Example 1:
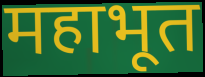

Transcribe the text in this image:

महाभूत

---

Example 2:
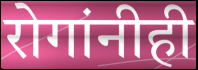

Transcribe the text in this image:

रोगांनीही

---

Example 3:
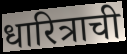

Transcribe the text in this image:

धारित्राची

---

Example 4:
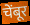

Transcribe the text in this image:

चेंबूर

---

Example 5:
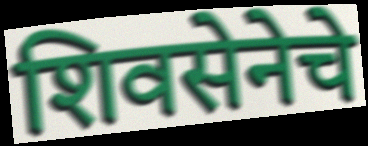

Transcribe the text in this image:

शिवसेनेचे